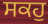
ਸਕਹੁ